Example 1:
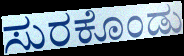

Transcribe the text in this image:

ಸುರಕೊಂಡು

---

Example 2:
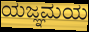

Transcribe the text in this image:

ಯಜ್ಞಮಯ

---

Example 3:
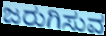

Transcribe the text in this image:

ಜರುಗಿಸುವ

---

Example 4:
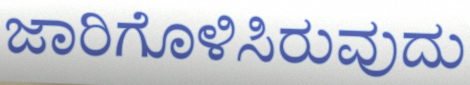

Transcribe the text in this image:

ಜಾರಿಗೊಳಿಸಿರುವುದು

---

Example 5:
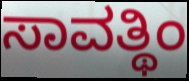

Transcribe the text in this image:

ಸಾವತ್ಥಿಂ